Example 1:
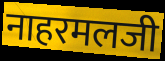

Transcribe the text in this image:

नाहरमलजी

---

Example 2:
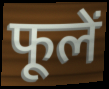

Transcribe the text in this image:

फूलें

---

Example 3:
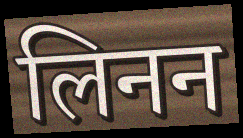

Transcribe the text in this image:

लिनन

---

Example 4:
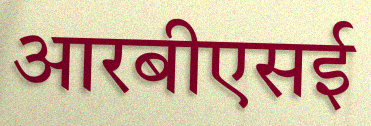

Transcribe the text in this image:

आरबीएसई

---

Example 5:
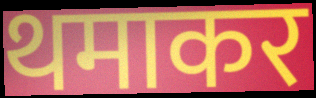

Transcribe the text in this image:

थमाकर